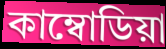
কাম্বোডিয়া